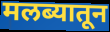
मलब्यातून